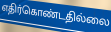
எதிர்கொண்டதில்லை